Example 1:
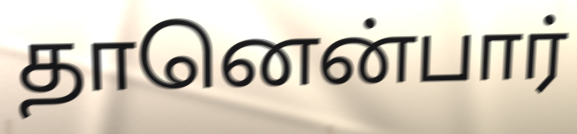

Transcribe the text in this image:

தானென்பார்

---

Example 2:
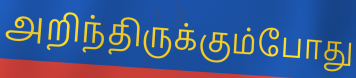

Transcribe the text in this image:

அறிந்திருக்கும்போது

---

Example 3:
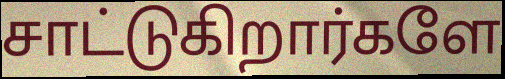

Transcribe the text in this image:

சாட்டுகிறார்களே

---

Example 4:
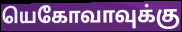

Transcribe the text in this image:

யெகோவாவுக்கு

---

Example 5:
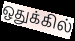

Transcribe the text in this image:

ஒதுக்கில்